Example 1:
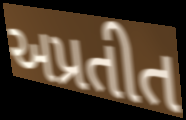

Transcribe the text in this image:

અપ્રતીત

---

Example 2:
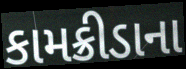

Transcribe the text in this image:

કામક્રીડાના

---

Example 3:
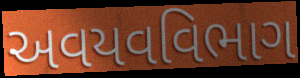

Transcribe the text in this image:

અવયવવિભાગ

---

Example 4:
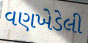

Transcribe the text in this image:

વણખેડેલી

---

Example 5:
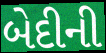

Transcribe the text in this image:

બેદીની